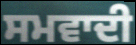
ਸਮਵਾਦੀ